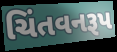
ચિંતવનરૂપ